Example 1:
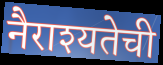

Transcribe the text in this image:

नैराश्यतेची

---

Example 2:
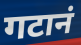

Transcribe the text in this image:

गटानं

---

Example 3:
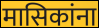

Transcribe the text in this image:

मासिकांना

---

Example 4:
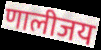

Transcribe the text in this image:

णालीजय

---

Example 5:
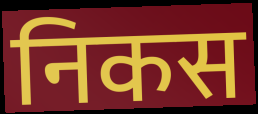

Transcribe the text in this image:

निकस